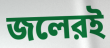
জলেরই